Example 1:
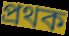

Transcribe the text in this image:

প্রথক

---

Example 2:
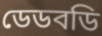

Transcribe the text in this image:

ডেডবডি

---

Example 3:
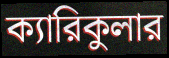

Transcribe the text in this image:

ক্যারিকুলার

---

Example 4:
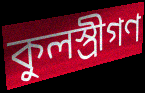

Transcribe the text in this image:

কুলস্ত্রীগণ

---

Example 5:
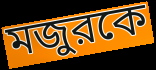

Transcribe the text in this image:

মজুরকে